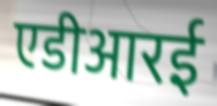
एडीआरई